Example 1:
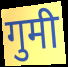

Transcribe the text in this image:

गुमी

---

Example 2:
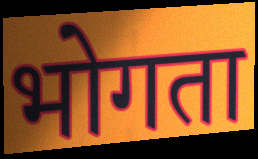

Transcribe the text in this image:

भोगता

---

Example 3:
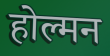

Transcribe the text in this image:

होल्मन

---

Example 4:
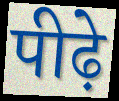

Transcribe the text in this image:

पीढ़े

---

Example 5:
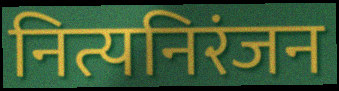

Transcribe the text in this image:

नित्यनिरंजन